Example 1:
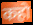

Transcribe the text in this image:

कहो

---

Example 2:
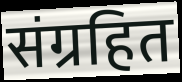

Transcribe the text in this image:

संग्रहित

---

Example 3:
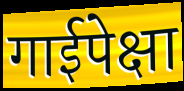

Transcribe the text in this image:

गाईपेक्षा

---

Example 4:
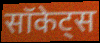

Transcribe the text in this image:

सॉकेट्स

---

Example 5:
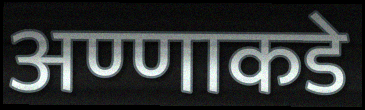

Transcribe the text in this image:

अण्णाकडे